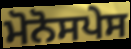
ਮੋਨੋਸਪੇਸ